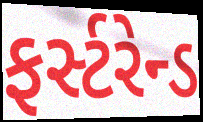
ફર્સ્ટરેન્ડ